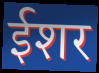
ईशर